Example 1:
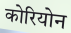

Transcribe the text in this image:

कोरियोन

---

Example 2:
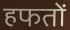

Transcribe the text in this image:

हफतों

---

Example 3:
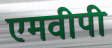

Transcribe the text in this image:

एमवीपी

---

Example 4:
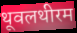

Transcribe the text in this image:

थूवलथीरम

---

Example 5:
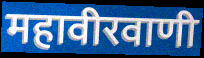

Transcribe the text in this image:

महावीरवाणी